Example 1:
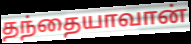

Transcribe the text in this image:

தந்தையாவான்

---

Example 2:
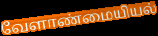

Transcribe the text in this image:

வேளாண்மையியல்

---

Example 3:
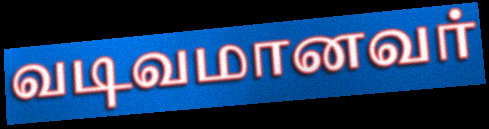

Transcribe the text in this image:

வடிவமானவர்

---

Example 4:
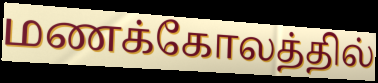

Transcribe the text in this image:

மணக்கோலத்தில்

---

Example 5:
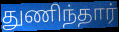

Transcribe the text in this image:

துணிந்தார்